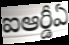
ఐఆర్డీఏ